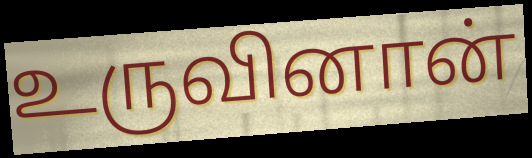
உருவினான்